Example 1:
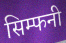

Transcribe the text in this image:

सिम्फनी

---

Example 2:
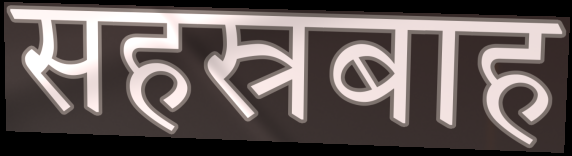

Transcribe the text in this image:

सहस्रबाह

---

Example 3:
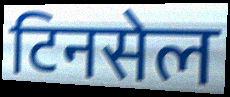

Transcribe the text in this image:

टिनसेल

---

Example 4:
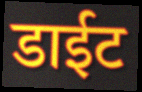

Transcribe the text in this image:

डाईट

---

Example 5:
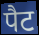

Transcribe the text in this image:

पैट